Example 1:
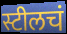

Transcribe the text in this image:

स्टीलचं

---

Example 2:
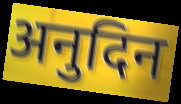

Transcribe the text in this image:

अनुदिन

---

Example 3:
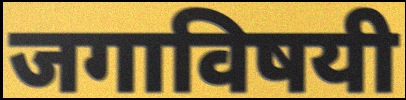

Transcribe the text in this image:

जगाविषयी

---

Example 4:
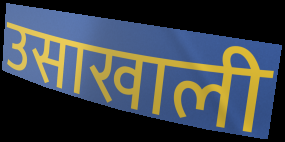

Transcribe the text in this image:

उसाखाली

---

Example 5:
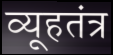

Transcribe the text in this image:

व्यूहतंत्र